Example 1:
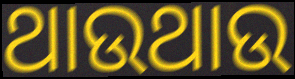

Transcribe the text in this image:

ଥାଉଥାଉ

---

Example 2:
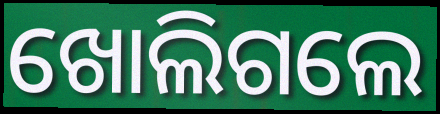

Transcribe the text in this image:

ଖୋଲିଗଲେ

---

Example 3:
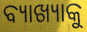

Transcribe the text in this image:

ବ୍ୟାଖ୍ୟାକୁ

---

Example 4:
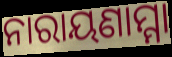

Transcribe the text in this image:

ନାରାୟଣାମ୍ମା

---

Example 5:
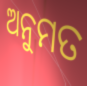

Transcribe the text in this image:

ଅନୁମତ